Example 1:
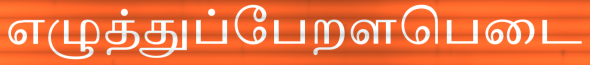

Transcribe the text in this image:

எழுத்துப்பேறளபெடை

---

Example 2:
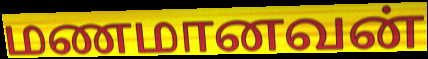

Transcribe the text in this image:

மணமானவன்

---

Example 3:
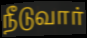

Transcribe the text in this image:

நீடுவார்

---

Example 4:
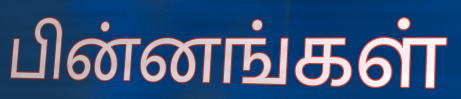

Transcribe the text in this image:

பின்னங்கள்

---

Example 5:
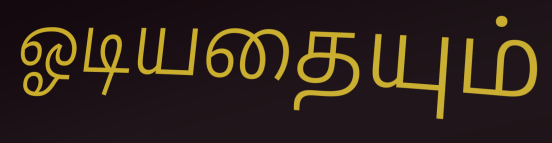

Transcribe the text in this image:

ஓடியதையும்